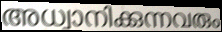
അധ്വാനിക്കുന്നവരും